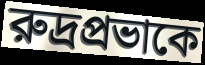
রুদ্রপ্রভাকে